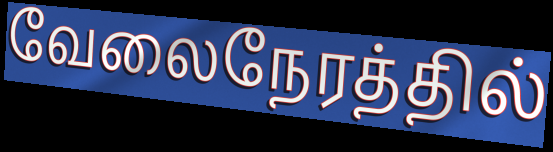
வேலைநேரத்தில்